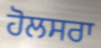
ਹੋਲਸਰਾ